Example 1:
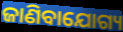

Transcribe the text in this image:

ଜାଣିବାଯୋଗ୍ୟ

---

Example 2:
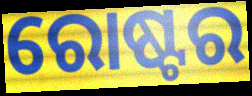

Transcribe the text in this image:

ରୋଷ୍ଟର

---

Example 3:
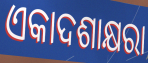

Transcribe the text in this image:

ଏକାଦଶାକ୍ଷରା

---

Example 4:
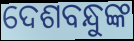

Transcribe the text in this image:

ଦେଶବନ୍ଧୁଙ୍କ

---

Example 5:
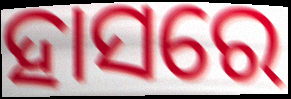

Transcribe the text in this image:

ହାସରେ